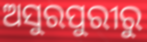
ଅସୁରପୁରୀରୁ